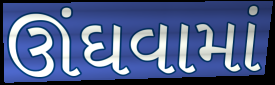
ઊંઘવામાં